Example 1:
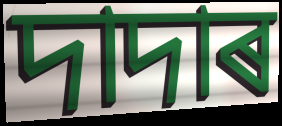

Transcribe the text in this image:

দাদাৰ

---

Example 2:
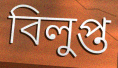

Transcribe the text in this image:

বিলুপ্ত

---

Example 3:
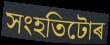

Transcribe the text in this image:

সংহতিটোৰ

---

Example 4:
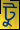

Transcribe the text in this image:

টু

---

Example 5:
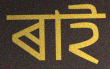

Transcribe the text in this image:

ৰাই